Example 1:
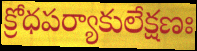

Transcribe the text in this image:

క్రోధపర్యాకులేక్షణః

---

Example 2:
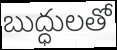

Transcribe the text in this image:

బుద్ధులతో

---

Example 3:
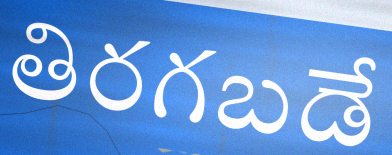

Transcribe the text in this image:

తిరగబడే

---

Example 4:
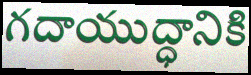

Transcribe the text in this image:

గదాయుద్ధానికి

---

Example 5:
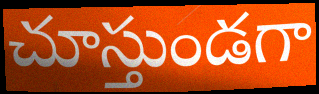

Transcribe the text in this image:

చూస్తుండగా